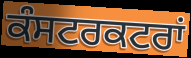
ਕੰਸਟਰਕਟਰਾਂ